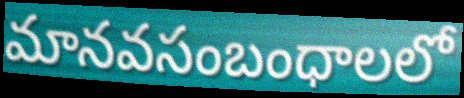
మానవసంబంధాలలో